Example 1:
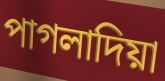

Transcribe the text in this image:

পাগলাদিয়া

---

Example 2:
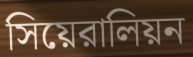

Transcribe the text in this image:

সিয়েরালিয়ন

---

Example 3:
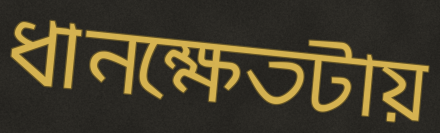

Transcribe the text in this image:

ধানক্ষেতটায়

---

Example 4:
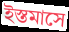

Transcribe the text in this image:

ইস্তমাসে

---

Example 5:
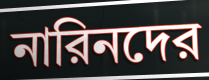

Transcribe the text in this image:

নারিনদের